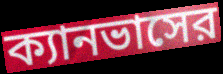
ক্যানভাসের